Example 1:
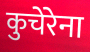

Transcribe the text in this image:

कुचेरेना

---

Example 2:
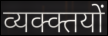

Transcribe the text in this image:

व्यक्क्तयों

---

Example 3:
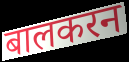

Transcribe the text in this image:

बालकरन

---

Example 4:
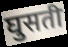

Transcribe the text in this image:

घुसती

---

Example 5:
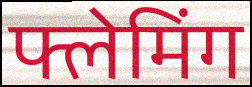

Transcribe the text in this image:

फ्लेमिंग